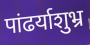
पांढर्याशुभ्र